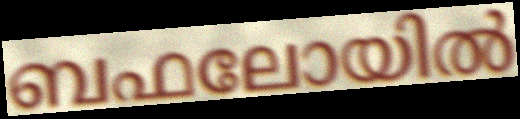
ബഫലോയിൽ